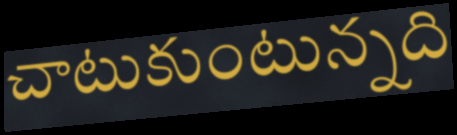
చాటుకుంటున్నది